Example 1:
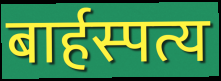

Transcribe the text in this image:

बार्हस्पत्य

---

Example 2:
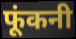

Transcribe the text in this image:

फूंकनी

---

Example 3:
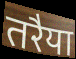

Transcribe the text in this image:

तरैया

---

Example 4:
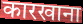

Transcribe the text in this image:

कारखाना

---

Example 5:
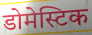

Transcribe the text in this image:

डोमेस्टिक